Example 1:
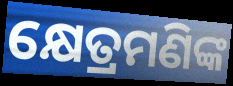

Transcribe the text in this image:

କ୍ଷେତ୍ରମଣିଙ୍କ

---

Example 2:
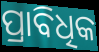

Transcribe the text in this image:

ପ୍ରାବିଧିକ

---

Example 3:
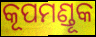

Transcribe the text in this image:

କୂପମଣ୍ଡୂକ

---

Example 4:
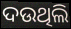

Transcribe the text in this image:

ଦଉଥିଲି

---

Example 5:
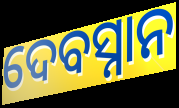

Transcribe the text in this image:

ଦେବସ୍ନାନ